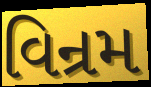
વિન્રમ